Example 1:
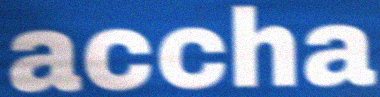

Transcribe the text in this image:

accha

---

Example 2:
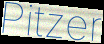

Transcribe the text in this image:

Pitzer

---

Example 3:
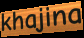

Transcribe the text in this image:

khajina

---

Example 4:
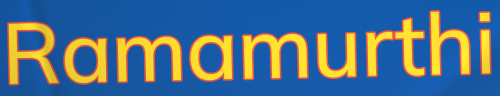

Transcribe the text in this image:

Ramamurthi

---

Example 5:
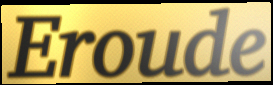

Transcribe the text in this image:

Eroude